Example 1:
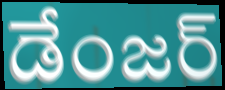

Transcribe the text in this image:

డేంజర్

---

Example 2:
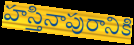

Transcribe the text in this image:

హస్తినాపురానికి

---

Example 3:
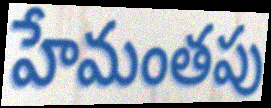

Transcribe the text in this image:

హేమంతపు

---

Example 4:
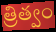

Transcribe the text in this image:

త్రిత్వం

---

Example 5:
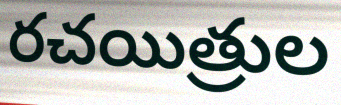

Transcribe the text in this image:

రచయిత్రుల